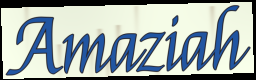
Amaziah